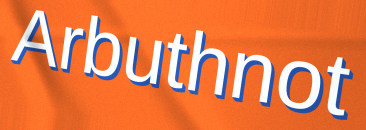
Arbuthnot